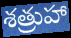
శత్రుహా